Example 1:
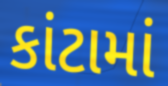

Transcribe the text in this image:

કાંટામાં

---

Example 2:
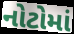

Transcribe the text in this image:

નોટોમાં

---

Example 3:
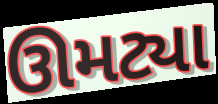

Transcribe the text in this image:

ઊમટ્યા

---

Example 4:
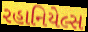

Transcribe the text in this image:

રહાનિયેલ્સ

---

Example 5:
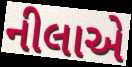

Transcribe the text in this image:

નીલાએ